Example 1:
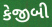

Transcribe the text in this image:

કેજીબી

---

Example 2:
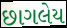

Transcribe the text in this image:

છાગલેય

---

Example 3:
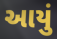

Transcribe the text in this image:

આયું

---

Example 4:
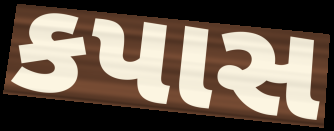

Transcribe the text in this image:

કપાસ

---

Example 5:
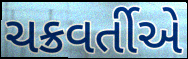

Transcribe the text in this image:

ચક્રવર્તીએ